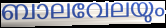
ബാലവേലയും